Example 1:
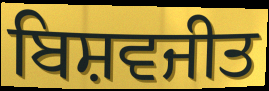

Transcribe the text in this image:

ਬਿਸ਼ਵਜੀਤ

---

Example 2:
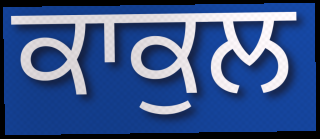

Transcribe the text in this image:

ਕਾਕੁਲ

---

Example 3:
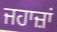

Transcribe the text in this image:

ਜਹਾਜ਼ਾਂ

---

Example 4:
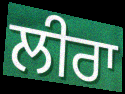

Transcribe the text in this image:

ਲੀਰਾ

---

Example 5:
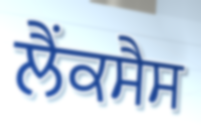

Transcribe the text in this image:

ਲੈਂਕਸੈਸ